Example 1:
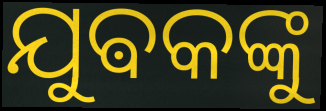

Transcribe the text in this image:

ଯୁଵକଙ୍କୁ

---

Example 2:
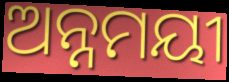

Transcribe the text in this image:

ଅନ୍ନମୟୀ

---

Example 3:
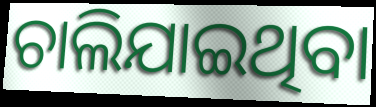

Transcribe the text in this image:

ଚାଲିଯାଇଥିବା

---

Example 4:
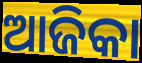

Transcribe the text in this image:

ଆଜିକା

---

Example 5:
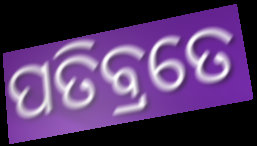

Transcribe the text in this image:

ପତିବ୍ରତେ